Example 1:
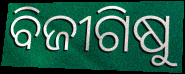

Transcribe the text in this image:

ବିଜୀଗିଷୁ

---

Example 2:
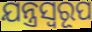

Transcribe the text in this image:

ଯନ୍ତ୍ରସ୍ୱରୂପ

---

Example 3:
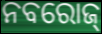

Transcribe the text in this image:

ନବରୋଜ୍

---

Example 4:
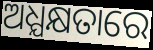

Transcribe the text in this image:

ଅଧ୍ଯକ୍ଷତାରେ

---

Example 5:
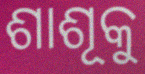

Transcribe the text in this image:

ଶାଶୂକୁ